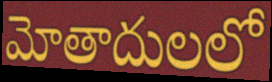
మోతాదులలో